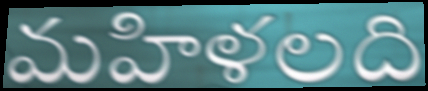
మహిళలది